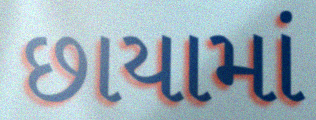
છાયામાં